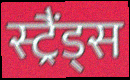
स्ट्रैंड्स